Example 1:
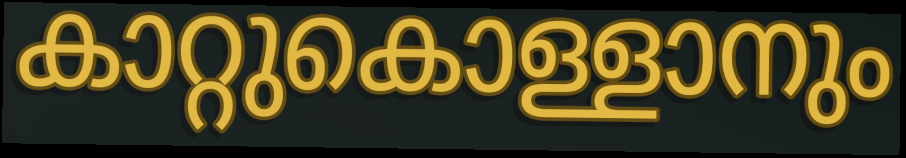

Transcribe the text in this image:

കാറ്റുകൊള്ളാനും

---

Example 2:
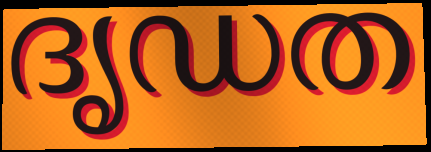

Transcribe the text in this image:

ദൃഡത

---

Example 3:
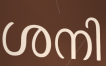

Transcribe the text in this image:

ശനി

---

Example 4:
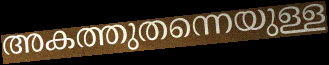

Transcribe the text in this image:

അകത്തുതന്നെയുള്ള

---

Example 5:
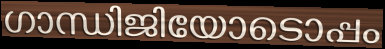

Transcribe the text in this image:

ഗാന്ധിജിയോടൊപ്പം